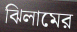
ঝিলামের